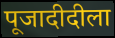
पूजादीदीला